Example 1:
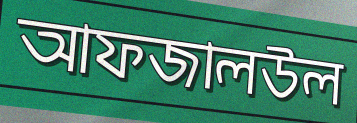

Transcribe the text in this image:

আফজালউল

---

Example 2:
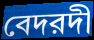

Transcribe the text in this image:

বেদরদী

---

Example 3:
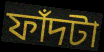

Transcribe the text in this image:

ফাঁদটা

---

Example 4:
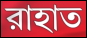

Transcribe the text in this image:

রাহাত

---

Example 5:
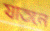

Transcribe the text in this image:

যাতনে